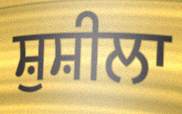
ਸ਼ੁਸ਼ੀਲਾ